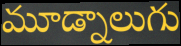
మూడ్నాలుగు